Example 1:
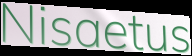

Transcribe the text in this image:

Nisaetus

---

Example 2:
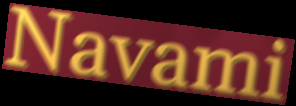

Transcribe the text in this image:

Navami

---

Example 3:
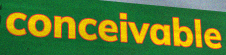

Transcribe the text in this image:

conceivable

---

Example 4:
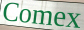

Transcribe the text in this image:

Comex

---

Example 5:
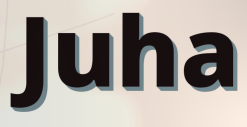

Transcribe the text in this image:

Juha